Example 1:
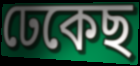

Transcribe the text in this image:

ঢেকেছ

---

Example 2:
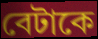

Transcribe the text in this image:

বেটাকে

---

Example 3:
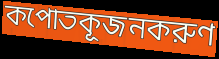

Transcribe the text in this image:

কপোতকূজনকরুণ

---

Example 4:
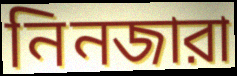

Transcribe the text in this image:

নিনজারা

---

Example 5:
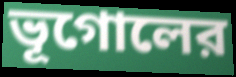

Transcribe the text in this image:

ভূগোলের